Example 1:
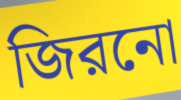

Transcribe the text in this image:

জিরনো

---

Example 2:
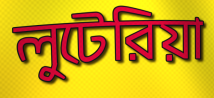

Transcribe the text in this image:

লুটেরিয়া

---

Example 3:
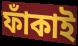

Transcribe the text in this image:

ফাঁকাই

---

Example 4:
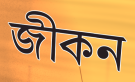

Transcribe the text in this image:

জীকন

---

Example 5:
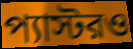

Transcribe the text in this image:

প্যাস্টরও